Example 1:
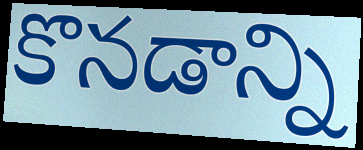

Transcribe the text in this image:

కొనడాన్ని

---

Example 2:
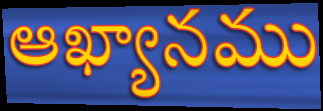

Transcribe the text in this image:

ఆఖ్యానము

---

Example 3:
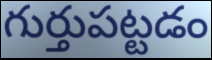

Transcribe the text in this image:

గుర్తుపట్టడం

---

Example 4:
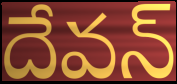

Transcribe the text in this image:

దేవన్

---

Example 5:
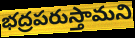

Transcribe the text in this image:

భద్రపరుస్తామని